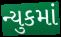
ન્યુકમાં